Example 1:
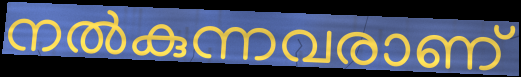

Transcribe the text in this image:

നൽകുന്നവരാണ്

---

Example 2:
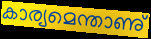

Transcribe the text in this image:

കാര്യമെന്താണു്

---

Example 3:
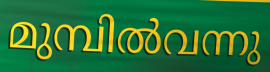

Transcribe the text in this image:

മുമ്പിൽവന്നു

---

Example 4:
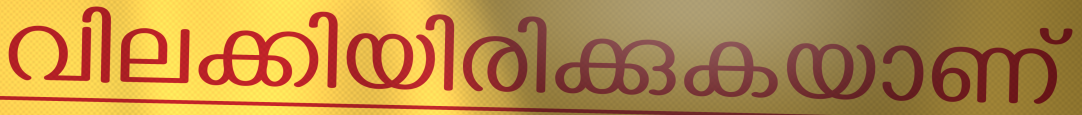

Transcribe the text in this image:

വിലക്കിയിരിക്കുകയാണ്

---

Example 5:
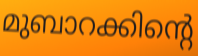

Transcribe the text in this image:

മുബാറക്കിന്റെ